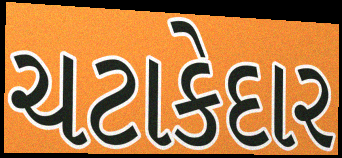
ચટાકેદાર